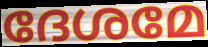
ദേശമേ